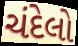
ચંદેલો